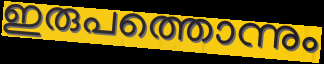
ഇരുപത്തൊന്നും